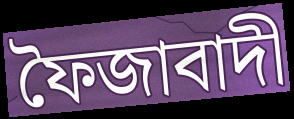
ফৈজাবাদী